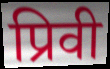
प्रिवी